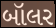
બૉલર